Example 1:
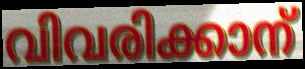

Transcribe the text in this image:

വിവരിക്കാന്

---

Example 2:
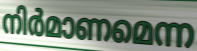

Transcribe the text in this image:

നിർമാണമെന്ന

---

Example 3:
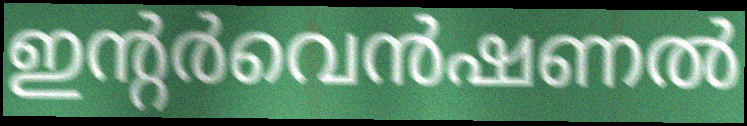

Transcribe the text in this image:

ഇന്റർവെൻഷണൽ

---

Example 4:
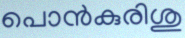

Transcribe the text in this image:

പൊൻകുരിശു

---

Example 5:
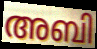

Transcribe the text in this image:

അബി